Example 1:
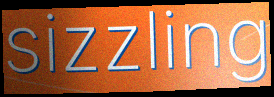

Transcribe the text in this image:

sizzling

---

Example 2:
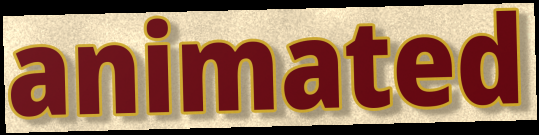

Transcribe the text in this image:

animated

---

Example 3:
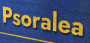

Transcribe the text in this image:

Psoralea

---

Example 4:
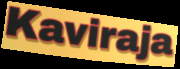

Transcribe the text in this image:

Kaviraja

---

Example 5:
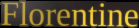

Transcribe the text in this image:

Florentine